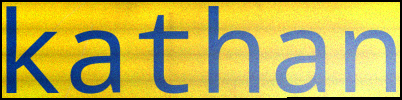
kathan